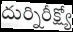
దుర్నిరీక్ష్యో